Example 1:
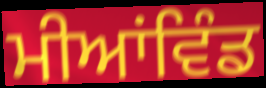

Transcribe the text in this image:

ਮੀਆਂਵਿੰਡ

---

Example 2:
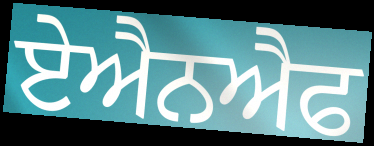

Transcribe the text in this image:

ਏਐਨਐਫ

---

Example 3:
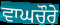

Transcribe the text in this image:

ਵਾਘਚੌਰੇ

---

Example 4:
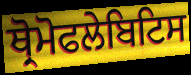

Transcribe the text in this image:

ਥ੍ਰੋਮੋਫਲੇਬਿਟਿਸ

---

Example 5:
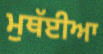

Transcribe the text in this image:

ਮੁਥੱਈਆ